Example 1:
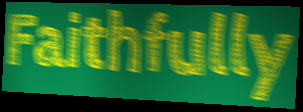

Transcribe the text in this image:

Faithfully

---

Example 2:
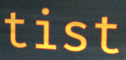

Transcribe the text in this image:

tist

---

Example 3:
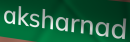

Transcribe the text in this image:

aksharnad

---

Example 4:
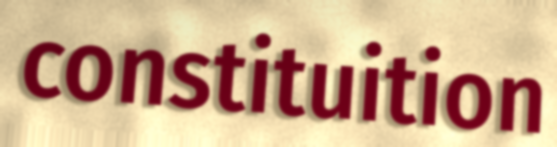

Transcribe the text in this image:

constituition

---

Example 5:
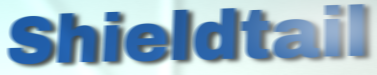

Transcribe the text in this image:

Shieldtail